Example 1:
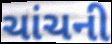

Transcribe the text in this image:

ચાંચની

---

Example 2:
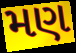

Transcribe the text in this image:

મણ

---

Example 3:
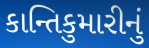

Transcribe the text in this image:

કાન્તિકુમારીનું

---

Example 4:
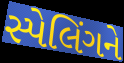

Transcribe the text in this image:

સ્પેલિંગને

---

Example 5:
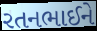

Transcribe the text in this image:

રતનભાઈને